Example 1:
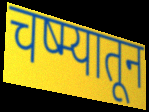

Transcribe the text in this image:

चष्म्यातून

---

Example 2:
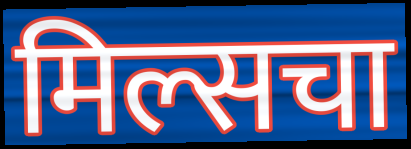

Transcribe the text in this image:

मिल्सचा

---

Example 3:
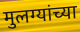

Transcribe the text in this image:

मुलग्यांच्या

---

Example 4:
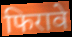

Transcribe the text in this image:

फिरावे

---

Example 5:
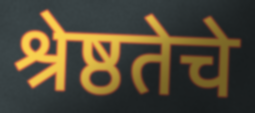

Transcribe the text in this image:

श्रेष्ठतेचे